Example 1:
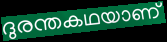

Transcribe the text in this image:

ദുരന്തകഥയാണ്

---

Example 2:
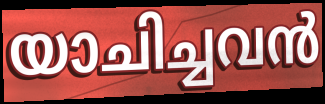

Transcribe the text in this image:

യാചിച്ചവൻ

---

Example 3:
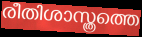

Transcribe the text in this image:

രീതിശാസ്ത്രത്തെ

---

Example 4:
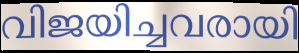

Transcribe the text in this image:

വിജയിച്ചവരായി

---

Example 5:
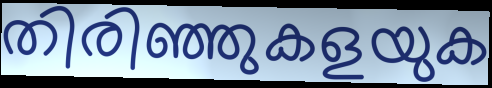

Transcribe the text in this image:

തിരിഞ്ഞുകളയുക